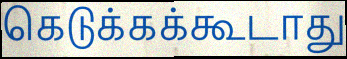
கெடுக்கக்கூடாது